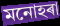
মনোহৰা